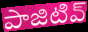
పాజిటివ్